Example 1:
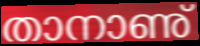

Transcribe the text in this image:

താനാണു്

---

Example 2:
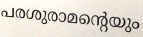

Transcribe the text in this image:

പരശുരാമന്റെയും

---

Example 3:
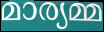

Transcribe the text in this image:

മാര്യമ്മ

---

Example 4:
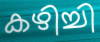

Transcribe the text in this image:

കഴിച്ചി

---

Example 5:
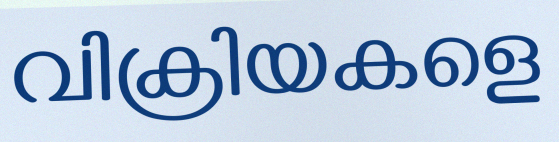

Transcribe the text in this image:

വിക്രിയകളെ